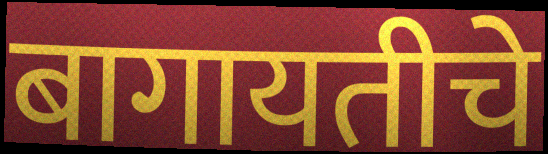
बागायतीचे